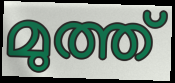
മുത്ത്